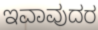
ಇವಾವುದರ